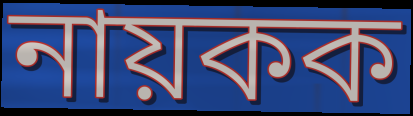
নায়কক